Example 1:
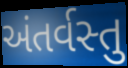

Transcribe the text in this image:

અંતર્વસ્તુ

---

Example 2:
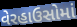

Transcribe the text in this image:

વેરહાઉસોમાં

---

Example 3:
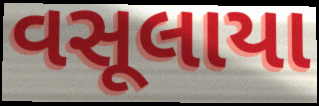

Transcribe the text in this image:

વસૂલાયા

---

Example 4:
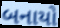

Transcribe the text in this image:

બનાયો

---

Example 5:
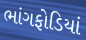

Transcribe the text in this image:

ભાંગફોડિયાં